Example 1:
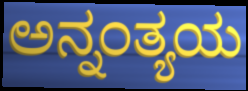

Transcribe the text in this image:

ಅನ್ನಂತ್ಯಯ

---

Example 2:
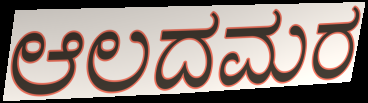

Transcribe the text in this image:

ಆಲದಮರ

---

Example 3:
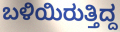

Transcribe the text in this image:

ಬಳಿಯಿರುತ್ತಿದ್ದ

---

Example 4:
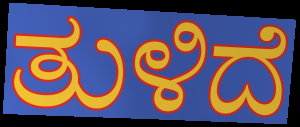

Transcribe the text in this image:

ತುಳಿದೆ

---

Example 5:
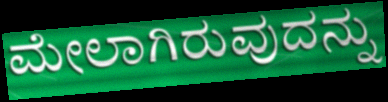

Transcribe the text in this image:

ಮೇಲಾಗಿರುವುದನ್ನು